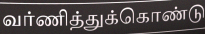
வர்ணித்துக்கொண்டு